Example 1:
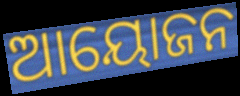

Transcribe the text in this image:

ଆୟୋଜନ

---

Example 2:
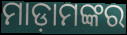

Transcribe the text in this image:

ମାଡ଼ାମଙ୍କର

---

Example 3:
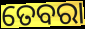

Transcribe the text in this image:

ତେବରା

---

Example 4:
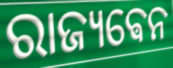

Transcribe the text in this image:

ରାଜ୍ୟଵେନ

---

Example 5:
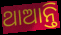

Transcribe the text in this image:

ଥାଆନ୍ତି